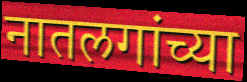
नातलगांच्या